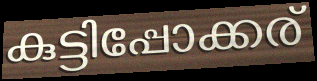
കുട്ടിപ്പോക്കര്